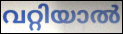
വറ്റിയാൽ